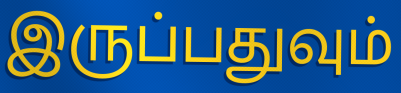
இருப்பதுவும்